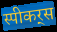
स्पीकर्स